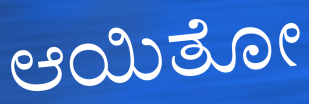
ಆಯಿತೋ